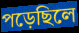
পড়েছিলে